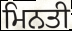
ਮਿਨਤੀ